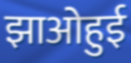
झाओहुई